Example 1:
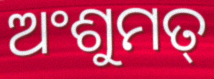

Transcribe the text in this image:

ଅଂଶୁମତ୍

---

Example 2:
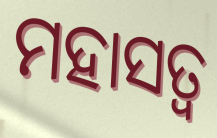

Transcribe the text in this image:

ମହାସତ୍ୱ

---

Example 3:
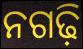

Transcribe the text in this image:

ନଗଢ଼ି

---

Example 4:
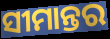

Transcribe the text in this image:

ସୀମାନ୍ତର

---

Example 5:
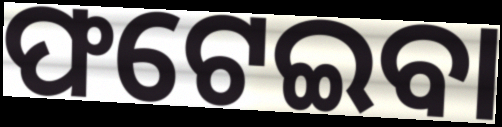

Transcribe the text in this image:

ଫଟେଇବା